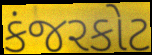
કંજરકોટ